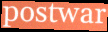
postwar